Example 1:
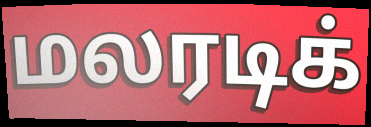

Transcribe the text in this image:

மலரடிக்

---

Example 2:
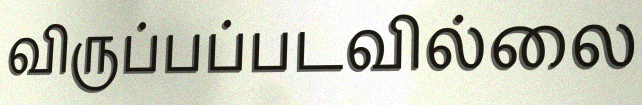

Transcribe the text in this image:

விருப்பப்படவில்லை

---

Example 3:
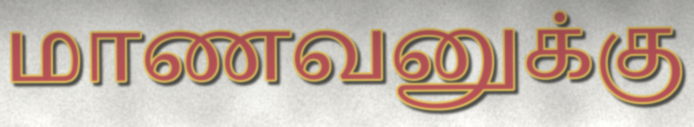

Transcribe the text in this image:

மாணவனுக்கு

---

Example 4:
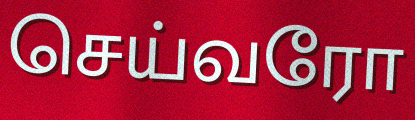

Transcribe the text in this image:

செய்வரோ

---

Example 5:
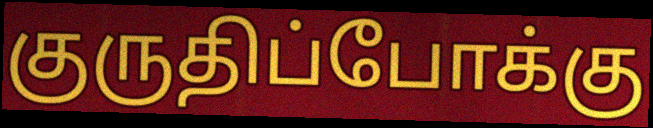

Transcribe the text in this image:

குருதிப்போக்கு